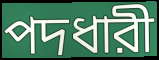
পদধারী